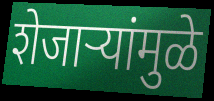
शेजाऱ्यांमुळे